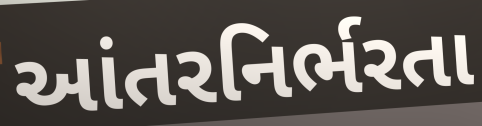
આંતરનિર્ભરતા